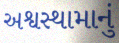
અશ્વસ્થામાનું